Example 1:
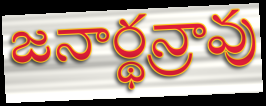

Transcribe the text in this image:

జనార్థన్రావు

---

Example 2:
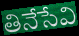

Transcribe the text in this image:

తినేసేవి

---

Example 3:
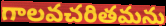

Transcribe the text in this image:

గాలవచరితమను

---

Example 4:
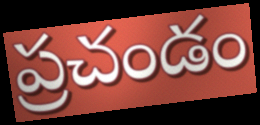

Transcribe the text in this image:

ప్రచండం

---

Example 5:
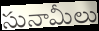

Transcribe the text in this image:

సునామీలు